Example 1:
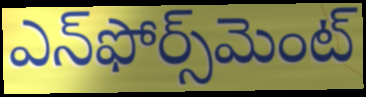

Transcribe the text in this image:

ఎన్‌ఫోర్స్‌మెంట్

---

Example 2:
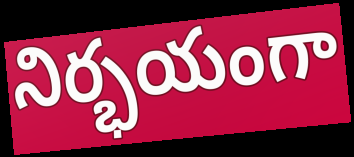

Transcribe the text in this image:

నిర్భయంగా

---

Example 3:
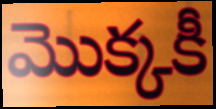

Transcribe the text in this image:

మొక్కకీ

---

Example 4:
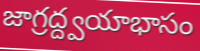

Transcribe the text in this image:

జాగ్రద్ద్వయాభాసం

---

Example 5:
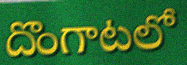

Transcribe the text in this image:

దొంగాటలో